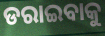
ଡରାଇବାକୁ